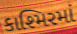
કાશ્મિરમાં